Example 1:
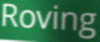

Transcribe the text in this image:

Roving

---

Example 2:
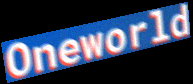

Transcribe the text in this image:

Oneworld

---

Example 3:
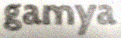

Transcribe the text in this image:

gamya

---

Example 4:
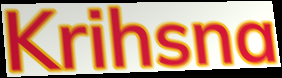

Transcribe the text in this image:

Krihsna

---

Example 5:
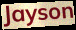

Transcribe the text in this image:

Jayson